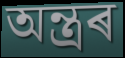
অন্ত্ৰৰ